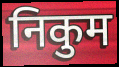
निकुम